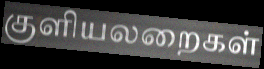
குளியலறைகள்